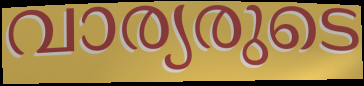
വാര്യരുടെ